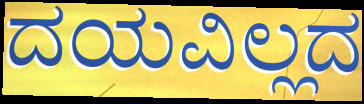
ದಯವಿಲ್ಲದ